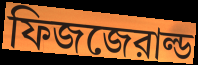
ফিজজেরাল্ড